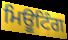
ਮਿਊਟਿੰਗ